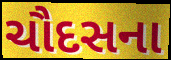
ચૌદસના